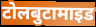
टोलबुटामाइड